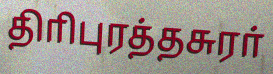
திரிபுரத்தசுரர்